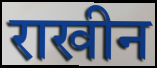
राखीन